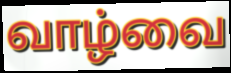
வாழ்வை